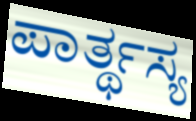
ಪಾರ್ತ್ಥಸ್ಯ